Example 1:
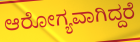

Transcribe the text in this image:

ಆರೋಗ್ಯವಾಗಿದ್ದರೆ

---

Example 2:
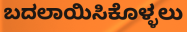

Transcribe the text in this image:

ಬದಲಾಯಿಸಿಕೊಳ್ಳಲು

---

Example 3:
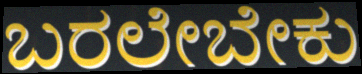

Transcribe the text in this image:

ಬರಲೇಬೇಕು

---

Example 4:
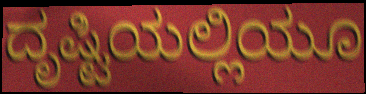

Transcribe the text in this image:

ದೃಷ್ಟಿಯಲ್ಲಿಯೂ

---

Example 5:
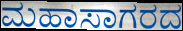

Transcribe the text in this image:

ಮಹಾಸಾಗರದ